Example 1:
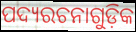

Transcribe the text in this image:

ପଦ୍ୟରଚନାଗୁଡ଼ିକ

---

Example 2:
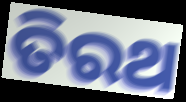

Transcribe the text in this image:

ତିରଥ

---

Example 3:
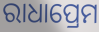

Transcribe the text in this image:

ରାଧାପ୍ରେମ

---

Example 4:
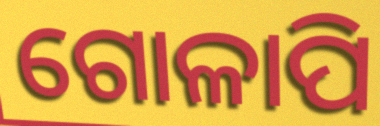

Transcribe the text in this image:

ଗୋଳାପି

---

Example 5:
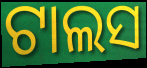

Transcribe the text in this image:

ଟାଲସ